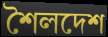
শৈলদেশ